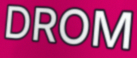
DROM